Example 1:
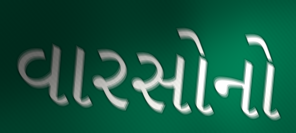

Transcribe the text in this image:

વારસોનો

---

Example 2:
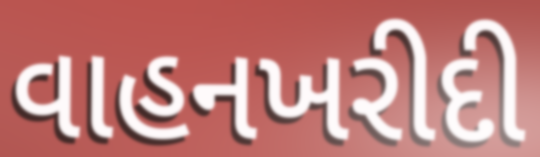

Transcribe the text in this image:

વાહનખરીદી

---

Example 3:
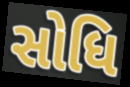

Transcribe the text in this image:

સોધિ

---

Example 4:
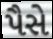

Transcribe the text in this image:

પૈસે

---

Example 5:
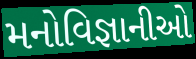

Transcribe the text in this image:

મનોવિજ્ઞાનીઓ